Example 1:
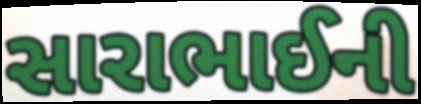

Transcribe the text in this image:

સારાભાઈની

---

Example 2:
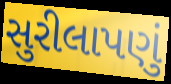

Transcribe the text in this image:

સુરીલાપણું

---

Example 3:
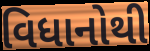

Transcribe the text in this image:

વિધાનોથી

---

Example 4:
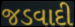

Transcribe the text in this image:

જડવાદી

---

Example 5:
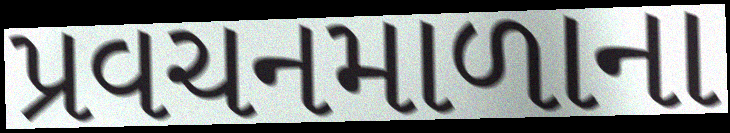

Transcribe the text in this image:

પ્રવચનમાળાના